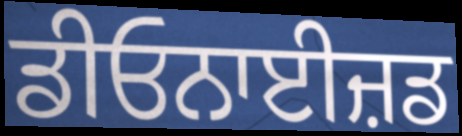
ਡੀਓਨਾਈਜ਼ਡ